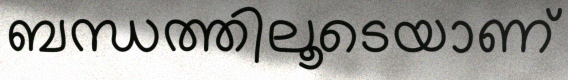
ബന്ധത്തിലൂടെയാണ്